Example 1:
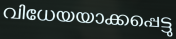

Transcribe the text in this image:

വിധേയയാക്കപ്പെട്ടു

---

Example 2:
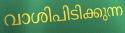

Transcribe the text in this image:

വാശിപിടിക്കുന്ന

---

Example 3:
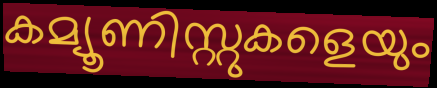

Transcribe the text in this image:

കമ്യൂണിസ്റ്റുകളെയും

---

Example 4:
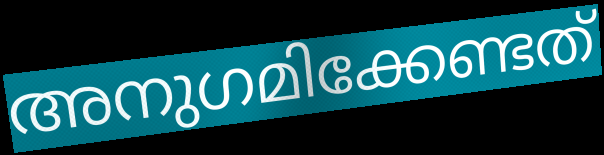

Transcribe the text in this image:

അനുഗമിക്കേണ്ടത്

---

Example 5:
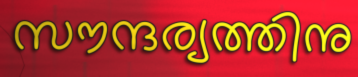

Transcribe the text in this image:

സൗന്ദര്യത്തിനു